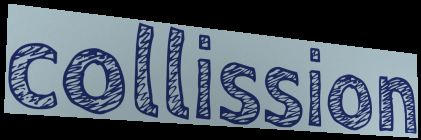
collission